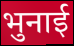
भुनाई